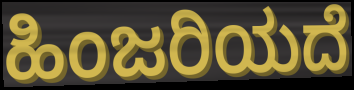
ಹಿಂಜರಿಯದೆ